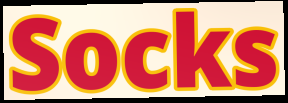
Socks